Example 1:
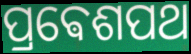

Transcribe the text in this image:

ପ୍ରଵେଶପଥ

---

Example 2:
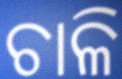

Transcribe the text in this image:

ଚାଳି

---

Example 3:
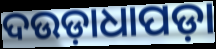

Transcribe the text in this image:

ଦଉଡ଼ାଧାପଡ଼ା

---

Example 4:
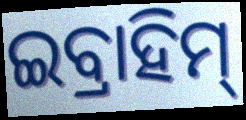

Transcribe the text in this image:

ଇବ୍ରାହିମ୍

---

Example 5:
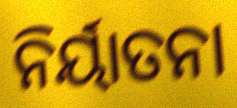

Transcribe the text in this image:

ନିର୍ୟାତନା